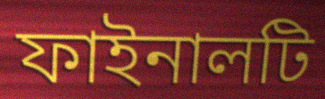
ফাইনালটি